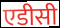
एडीसी